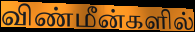
விண்மீன்களில்